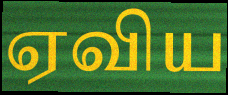
ஏவிய